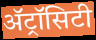
ॲट्रॉसिटी